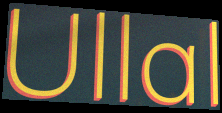
Ullal